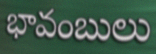
భావంబులు